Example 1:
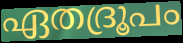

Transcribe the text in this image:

ഏതദ്രൂപം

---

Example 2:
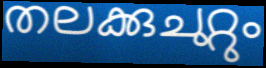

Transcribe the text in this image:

തലക്കുചുറ്റും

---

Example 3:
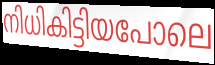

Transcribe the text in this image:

നിധികിട്ടിയപോലെ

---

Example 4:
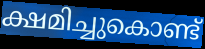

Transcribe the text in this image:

ക്ഷമിച്ചുകൊണ്ട്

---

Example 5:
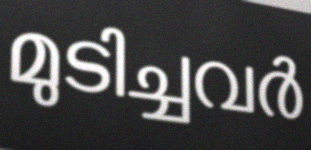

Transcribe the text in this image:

മുടിച്ചവർ